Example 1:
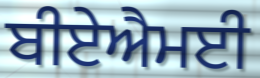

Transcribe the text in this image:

ਬੀਏਐਮਈ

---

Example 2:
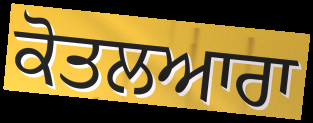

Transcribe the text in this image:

ਕੋਤਲਆਰਾ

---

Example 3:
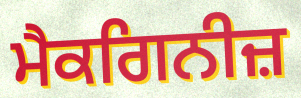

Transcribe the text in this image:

ਮੈਕਗਿਨੀਜ਼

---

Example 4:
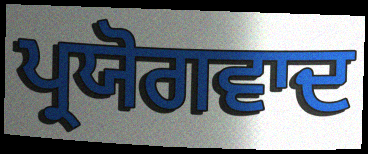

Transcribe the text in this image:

ਪ੍ਰਯੋਗਵਾਦ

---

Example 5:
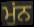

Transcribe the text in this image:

ਮੁਂਨ